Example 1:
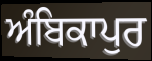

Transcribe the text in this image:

ਅੰਬਿਕਾਪੁਰ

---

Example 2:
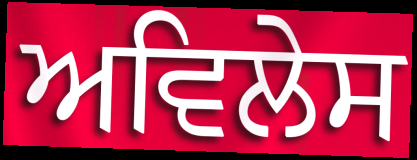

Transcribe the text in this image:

ਅਵਿਲੇਸ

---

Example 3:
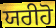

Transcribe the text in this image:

ਯਰੀਹੋ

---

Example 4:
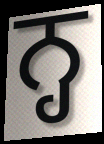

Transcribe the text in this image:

ਨ੍ਹ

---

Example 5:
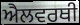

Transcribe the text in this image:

ਐਲਵਰਥੀ